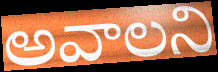
అవాలని